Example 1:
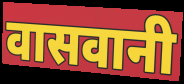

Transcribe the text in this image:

वासवानी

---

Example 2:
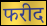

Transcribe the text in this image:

फरीद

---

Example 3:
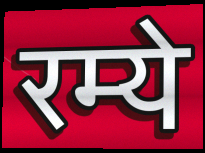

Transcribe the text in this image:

रम्ये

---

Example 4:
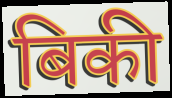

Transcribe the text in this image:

बिकी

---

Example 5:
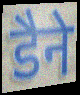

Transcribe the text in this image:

डैने